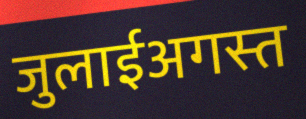
जुलाईअगस्त